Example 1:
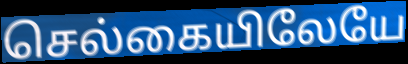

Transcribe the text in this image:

செல்கையிலேயே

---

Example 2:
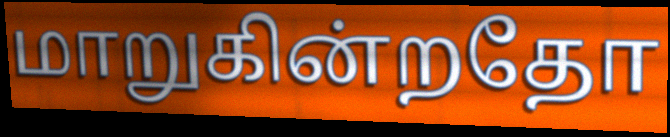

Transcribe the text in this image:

மாறுகின்றதோ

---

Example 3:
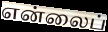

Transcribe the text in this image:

என்லைப்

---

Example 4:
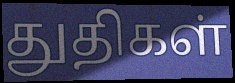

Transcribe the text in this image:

துதிகள்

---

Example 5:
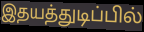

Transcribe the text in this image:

இதயத்துடிப்பில்